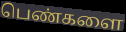
பெண்களை